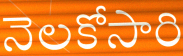
నెలకోసారి